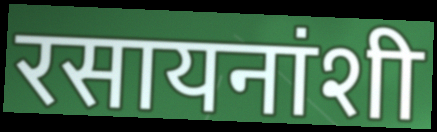
रसायनांशी